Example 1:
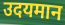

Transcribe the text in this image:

उदयमान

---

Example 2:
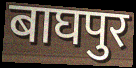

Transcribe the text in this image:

बाघपुर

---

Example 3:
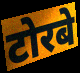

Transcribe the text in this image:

टोरबे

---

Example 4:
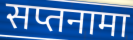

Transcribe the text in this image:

सप्तनामा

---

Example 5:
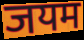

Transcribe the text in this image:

जयम